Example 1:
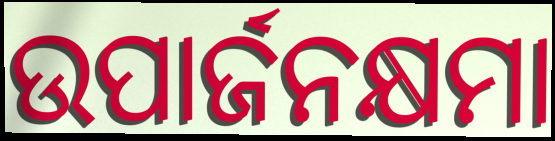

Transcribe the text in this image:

ଉପାର୍ଜନକ୍ଷମା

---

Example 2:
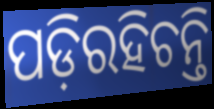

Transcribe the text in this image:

ପଡ଼ିରହିଚନ୍ତି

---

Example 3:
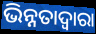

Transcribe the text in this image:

ଭିନ୍ନତାଦ୍ୱାରା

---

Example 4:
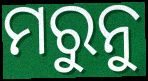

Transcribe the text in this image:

ମରୁନୁ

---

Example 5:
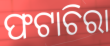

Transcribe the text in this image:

ଫଟାଚିରା